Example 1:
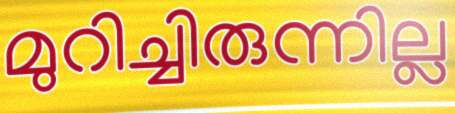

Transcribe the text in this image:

മുറിച്ചിരുന്നില്ല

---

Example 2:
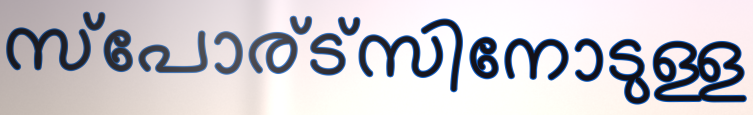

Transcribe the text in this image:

സ്പോര്ട്സിനോടുള്ള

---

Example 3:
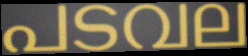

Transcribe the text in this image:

പടവല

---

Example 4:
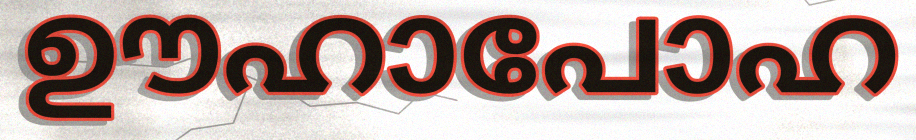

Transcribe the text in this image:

ഊഹാപോഹ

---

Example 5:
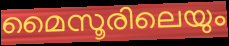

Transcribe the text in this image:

മൈസൂരിലെയും